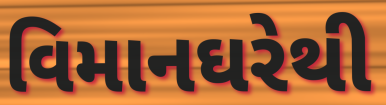
વિમાનઘરેથી